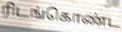
ரிடங்கொண்ட